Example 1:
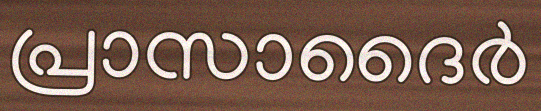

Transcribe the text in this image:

പ്രാസാദൈർ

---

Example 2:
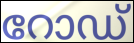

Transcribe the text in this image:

റോഡ്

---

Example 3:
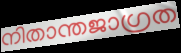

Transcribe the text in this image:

നിതാന്തജാഗ്രത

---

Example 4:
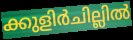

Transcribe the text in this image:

ക്കുളിർചില്ലിൽ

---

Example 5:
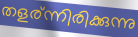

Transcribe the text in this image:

തളര്ന്നിരിക്കുന്നു